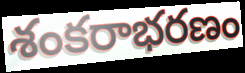
శంకరాభరణం